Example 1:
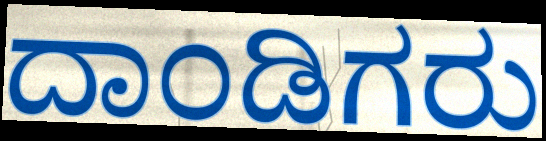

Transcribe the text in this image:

ದಾಂಡಿಗರು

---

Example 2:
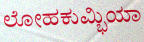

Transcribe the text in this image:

ಲೋಹಕುಮ್ಭಿಯಾ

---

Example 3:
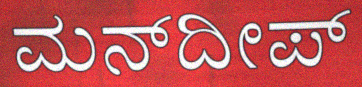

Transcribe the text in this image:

ಮನ್‍ದೀಪ್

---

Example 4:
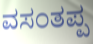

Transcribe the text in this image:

ವಸಂತಪ್ಪ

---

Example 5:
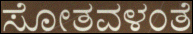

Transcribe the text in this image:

ಸೋತವಳಂತೆ